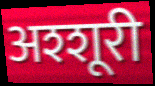
अश्‍शूरी